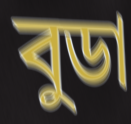
বুডা